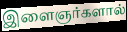
இளைஞர்களால்